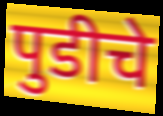
पुडीचे